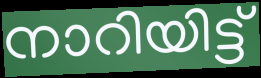
നാറിയിട്ട്